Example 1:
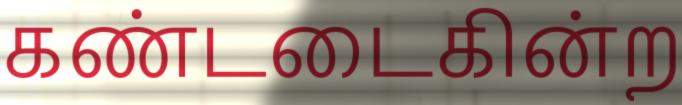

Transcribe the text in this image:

கண்டடைகின்ற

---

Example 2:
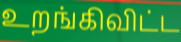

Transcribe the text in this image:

உறங்கிவிட்ட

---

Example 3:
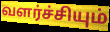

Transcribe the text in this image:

வளர்ச்சியும்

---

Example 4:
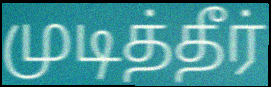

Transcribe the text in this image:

முடித்தீர்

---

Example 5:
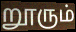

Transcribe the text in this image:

றூரும்